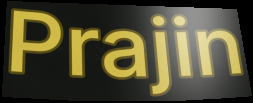
Prajin